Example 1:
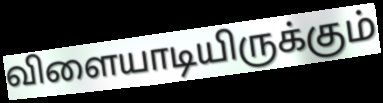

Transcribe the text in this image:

விளையாடியிருக்கும்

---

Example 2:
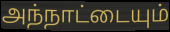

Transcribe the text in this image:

அந்நாட்டையும்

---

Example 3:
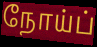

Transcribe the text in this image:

நோய்ப்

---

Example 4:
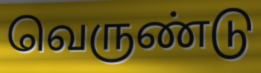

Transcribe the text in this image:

வெருண்டு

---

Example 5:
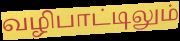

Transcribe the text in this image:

வழிபாட்டிலும்